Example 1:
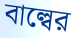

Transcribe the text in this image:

বাল্বের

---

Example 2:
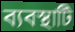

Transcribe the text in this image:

ব্যবস্থাটি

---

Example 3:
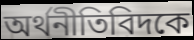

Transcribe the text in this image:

অর্থনীতিবিদকে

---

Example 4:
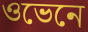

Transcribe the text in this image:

ওভেনে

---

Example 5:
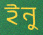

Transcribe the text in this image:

ইনু